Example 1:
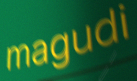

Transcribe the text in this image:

magudi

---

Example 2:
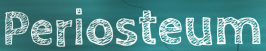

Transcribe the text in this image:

Periosteum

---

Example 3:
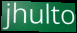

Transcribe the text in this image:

jhulto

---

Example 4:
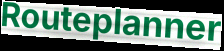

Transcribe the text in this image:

Routeplanner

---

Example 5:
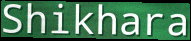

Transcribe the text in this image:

Shikhara